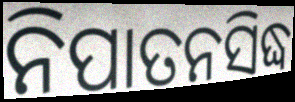
ନିପାତନସିଦ୍ଧ